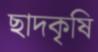
ছাদকৃষি